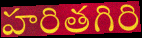
హరితగిరి